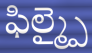
ఫిల్మ్పై